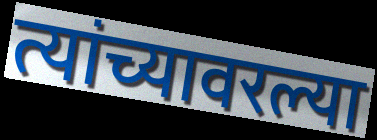
त्यांच्यावरल्या